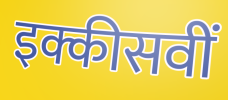
इक्‍कीसवीं